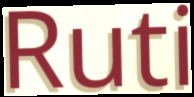
Ruti